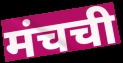
मंचची